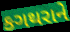
કગથરાને